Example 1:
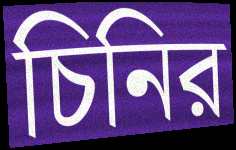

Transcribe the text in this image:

চিনির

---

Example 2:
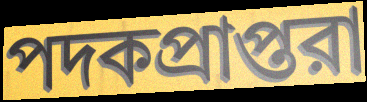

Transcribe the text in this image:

পদকপ্রাপ্তরা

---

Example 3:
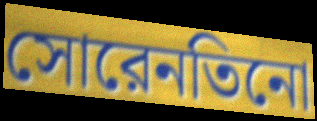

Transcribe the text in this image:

সোরেনতিনো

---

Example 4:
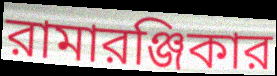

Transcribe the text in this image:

রামারঞ্জিকার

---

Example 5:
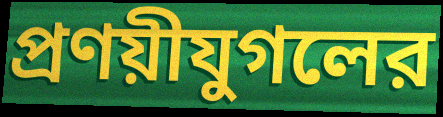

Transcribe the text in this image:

প্রণয়ীযুগলের